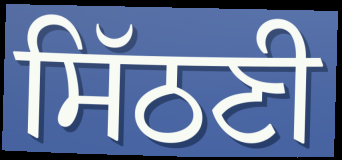
ਸਿੱਠਣੀ